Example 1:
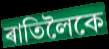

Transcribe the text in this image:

ৰাতিলৈকে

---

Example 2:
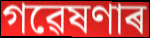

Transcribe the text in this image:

গৱেষণাৰ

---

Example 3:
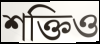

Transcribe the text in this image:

শক্তিও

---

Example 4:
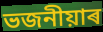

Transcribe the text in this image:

ভজনীয়াৰ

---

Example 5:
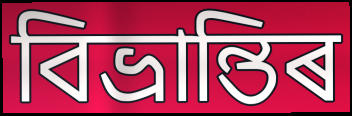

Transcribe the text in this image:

বিভ্ৰান্তিৰ